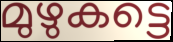
മുഴുകട്ടെ